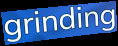
grinding